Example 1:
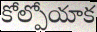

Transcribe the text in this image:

కోల్పోయాక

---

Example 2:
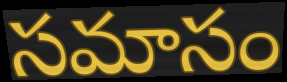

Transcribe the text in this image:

సమాసం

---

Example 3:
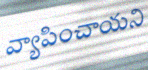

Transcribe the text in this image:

వ్యాపించాయని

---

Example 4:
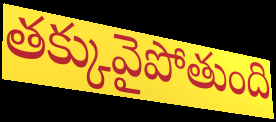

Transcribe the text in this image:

తక్కువైపోతుంది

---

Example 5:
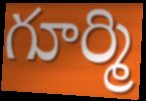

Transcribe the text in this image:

గూర్మి